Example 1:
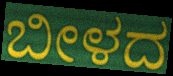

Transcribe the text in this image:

ಬೀಳದ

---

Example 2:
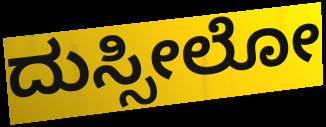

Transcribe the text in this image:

ದುಸ್ಸೀಲೋ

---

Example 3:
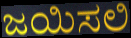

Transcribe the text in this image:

ಜಯಿಸಲಿ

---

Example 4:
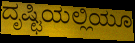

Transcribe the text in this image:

ದೃಷ್ಟಿಯಲ್ಲಿಯೂ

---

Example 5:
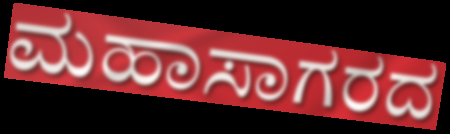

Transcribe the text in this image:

ಮಹಾಸಾಗರದ